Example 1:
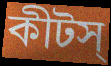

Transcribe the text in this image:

কীটস্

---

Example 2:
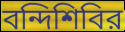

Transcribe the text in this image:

বন্দিশিবির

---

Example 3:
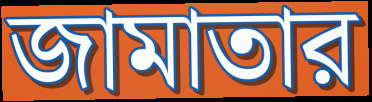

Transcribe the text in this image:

জামাতার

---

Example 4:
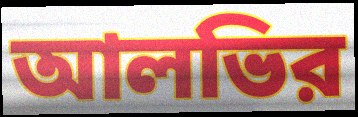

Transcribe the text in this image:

আলভির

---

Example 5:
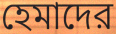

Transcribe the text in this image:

হেমাদের